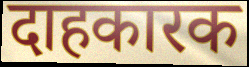
दाहकारक